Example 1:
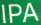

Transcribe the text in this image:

IPA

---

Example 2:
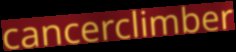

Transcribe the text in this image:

cancerclimber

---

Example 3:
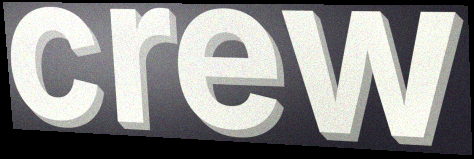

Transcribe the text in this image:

crew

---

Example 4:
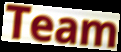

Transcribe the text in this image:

Team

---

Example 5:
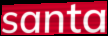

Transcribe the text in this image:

santa